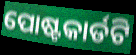
ପୋଷ୍ଟକାର୍ଡଟି